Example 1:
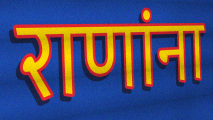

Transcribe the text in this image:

राणांना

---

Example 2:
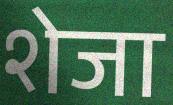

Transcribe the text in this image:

शेजा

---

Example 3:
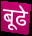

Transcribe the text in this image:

बूढे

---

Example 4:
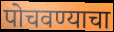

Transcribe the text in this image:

पोचवण्याचा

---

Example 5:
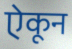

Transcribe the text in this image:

ऐकून